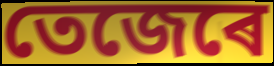
তেজেৰে